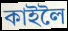
কাইলৈ